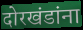
दोरखंडांना